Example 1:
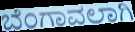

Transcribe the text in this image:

ಬೆಂಗಾವಲಾಗಿ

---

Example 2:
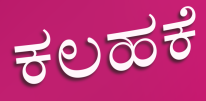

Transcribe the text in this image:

ಕಲಹಕೆ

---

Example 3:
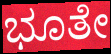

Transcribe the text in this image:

ಭೂತೇ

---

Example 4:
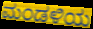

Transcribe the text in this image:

ಮಂಡಳಿಯ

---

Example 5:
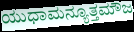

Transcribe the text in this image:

ಯುಧಾಮನ್ಯೂತ್ತಮೌಜ